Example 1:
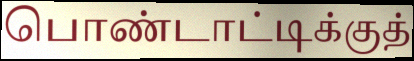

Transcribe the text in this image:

பொண்டாட்டிக்குத்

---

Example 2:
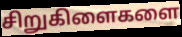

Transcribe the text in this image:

சிறுகிளைகளை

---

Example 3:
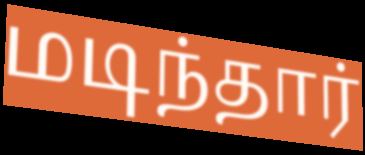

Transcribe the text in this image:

மடிந்தார்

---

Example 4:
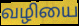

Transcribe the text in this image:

வழியை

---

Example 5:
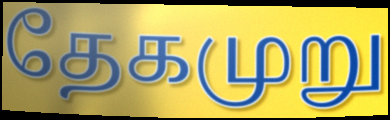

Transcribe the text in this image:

தேகமுறு